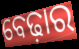
ବେଢ଼ାର